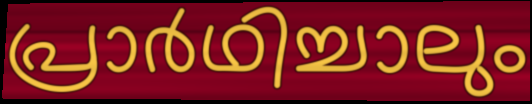
പ്രാർഥിച്ചാലും